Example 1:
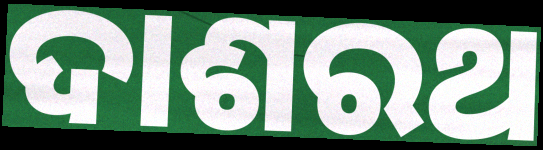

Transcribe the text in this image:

ଦାଶରଥ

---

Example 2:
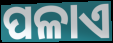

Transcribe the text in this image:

ପଳାଏ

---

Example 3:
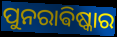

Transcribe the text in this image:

ପୁନରାଵିଷ୍କାର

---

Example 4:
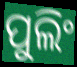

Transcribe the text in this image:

ପୁଲିଂ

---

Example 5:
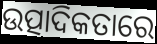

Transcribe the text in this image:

ଉତ୍ପାଦିକତାରେ